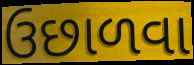
ઉછાળવા